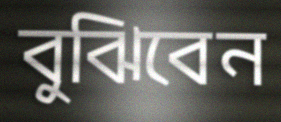
বুঝিবেন